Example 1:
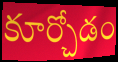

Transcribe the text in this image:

కూర్చోడం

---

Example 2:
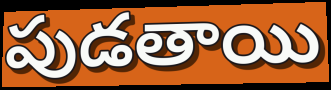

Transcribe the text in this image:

పుడతాయి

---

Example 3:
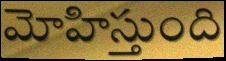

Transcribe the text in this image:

మోహిస్తుంది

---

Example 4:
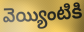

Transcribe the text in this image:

వెయ్యింటికి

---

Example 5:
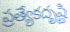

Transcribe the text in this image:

ప్రత్యేకదృష్టి